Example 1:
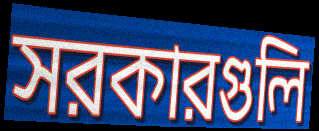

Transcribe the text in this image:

সরকারগুলি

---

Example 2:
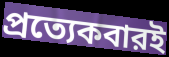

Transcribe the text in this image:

প্রত্যেকবারই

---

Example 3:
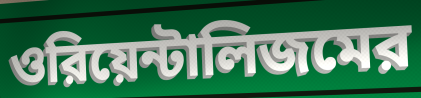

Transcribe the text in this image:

ওরিয়েন্টালিজমের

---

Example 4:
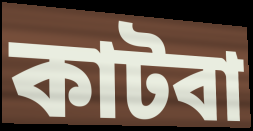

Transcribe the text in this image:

কাটবা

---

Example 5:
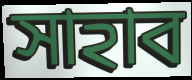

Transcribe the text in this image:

সাহাব